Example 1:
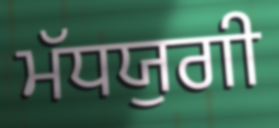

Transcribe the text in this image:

ਮੱਧਯੁਗੀ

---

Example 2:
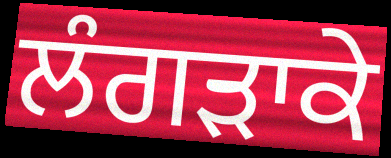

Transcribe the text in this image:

ਲੰਗੜਾਕੇ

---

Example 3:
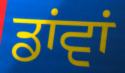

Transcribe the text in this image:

ਡਾਂਵਾਂ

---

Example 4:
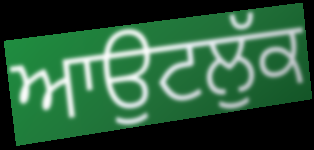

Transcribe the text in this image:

ਆਉਟਲੁੱਕ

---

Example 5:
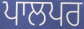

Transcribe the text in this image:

ਪਾਲਪਰ